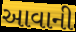
આવાની